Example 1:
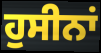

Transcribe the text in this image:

ਹੁਸੀਨਾਂ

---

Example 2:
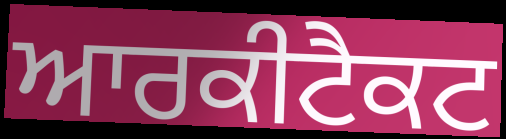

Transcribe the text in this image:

ਆਰਕੀਟੈਕਟ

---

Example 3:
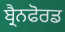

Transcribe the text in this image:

ਬ੍ਰੈਨਫੋਰਡ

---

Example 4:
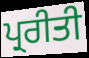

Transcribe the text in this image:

ਪ੍ਰਰੀਤੀ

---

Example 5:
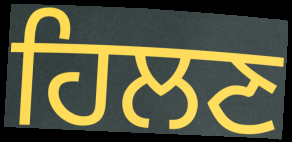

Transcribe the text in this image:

ਹਿਲਣ